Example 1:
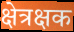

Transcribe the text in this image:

क्षेत्रक्षक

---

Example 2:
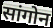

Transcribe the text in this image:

सांगोन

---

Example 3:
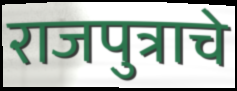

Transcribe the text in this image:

राजपुत्राचे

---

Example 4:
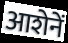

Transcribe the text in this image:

आशेनें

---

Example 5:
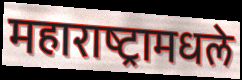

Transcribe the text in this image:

महाराष्ट्रामधले